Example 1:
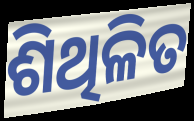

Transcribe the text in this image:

ଶିଥିଳିତ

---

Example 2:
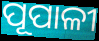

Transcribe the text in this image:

ପୂପାଳୀ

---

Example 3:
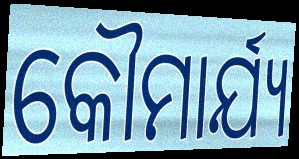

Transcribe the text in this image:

କୌମାର୍ଯ୍ୟ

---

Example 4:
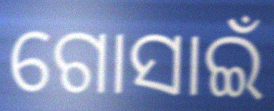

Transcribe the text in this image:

ଗୋସାଇଁ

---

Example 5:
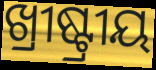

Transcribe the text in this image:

ଖ୍ରୀଷ୍ଟ୍ରୀୟ